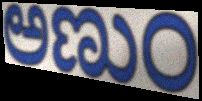
ಅಣುಂ